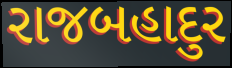
રાજબહાદુર